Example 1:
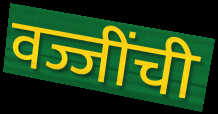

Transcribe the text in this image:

वज्जींची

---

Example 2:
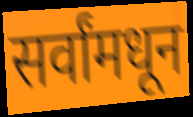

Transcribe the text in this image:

सर्वांमधून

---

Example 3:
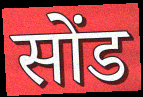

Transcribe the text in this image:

सोंड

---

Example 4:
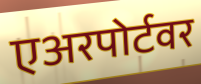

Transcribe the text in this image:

एअरपोर्टवर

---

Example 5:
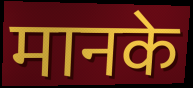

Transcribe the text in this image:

मानके